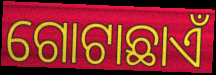
ଗୋଟାଛାଏଁ